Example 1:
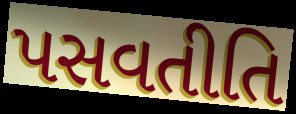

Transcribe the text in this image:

પસવતીતિ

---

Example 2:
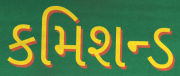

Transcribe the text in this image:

કમિશન્ડ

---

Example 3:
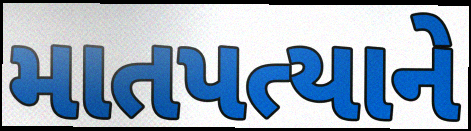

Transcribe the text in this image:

માતપત્યાને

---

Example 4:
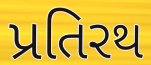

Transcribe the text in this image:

પ્રતિરથ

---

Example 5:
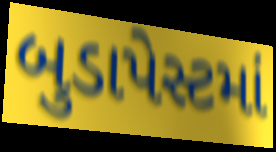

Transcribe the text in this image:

બુડાપેસ્ટમાં